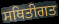
ਸਥਿਤੀਗਤ